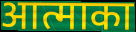
आत्माका